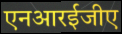
एनआरईजीए